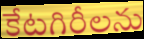
కేటగిరీలను